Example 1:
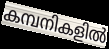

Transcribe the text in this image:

കമ്പനികളിൽ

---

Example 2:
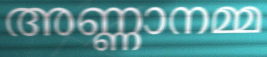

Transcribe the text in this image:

അണ്ണാനമ്മ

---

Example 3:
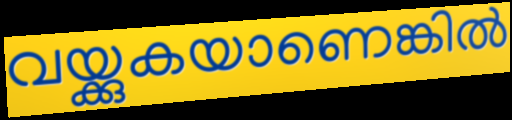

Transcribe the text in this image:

വയ്ക്കുകയാണെങ്കിൽ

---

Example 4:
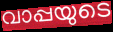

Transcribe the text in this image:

വാപ്പയുടെ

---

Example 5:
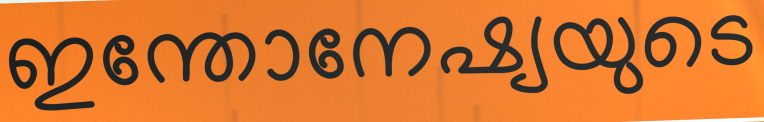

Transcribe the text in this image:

ഇന്തോനേഷ്യയുടെ